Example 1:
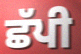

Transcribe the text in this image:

ਛੱਪੀ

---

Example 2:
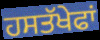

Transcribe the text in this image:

ਹਸਤੱਖੇਫਾਂ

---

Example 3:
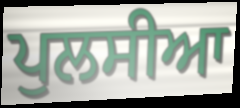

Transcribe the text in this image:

ਪੁਲਸੀਆ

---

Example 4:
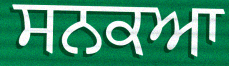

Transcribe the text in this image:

ਸਨਕਆ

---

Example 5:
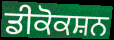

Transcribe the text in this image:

ਡੀਕੋਕਸ਼ਨ